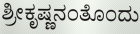
ಶ್ರೀಕೃಷ್ಣನಂತೊಂದು